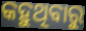
କହୁଥିବାରୁ